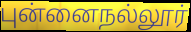
புன்னைநல்லூர்